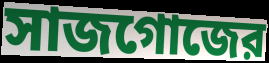
সাজগোজের